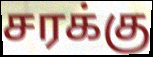
சரக்கு